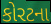
કોરટના